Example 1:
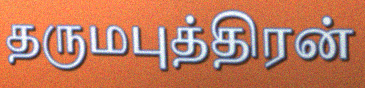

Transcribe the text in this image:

தருமபுத்திரன்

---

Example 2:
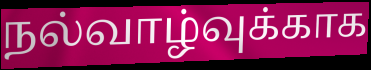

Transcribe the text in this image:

நல்வாழ்வுக்காக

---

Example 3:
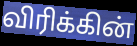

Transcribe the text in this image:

விரிக்கின்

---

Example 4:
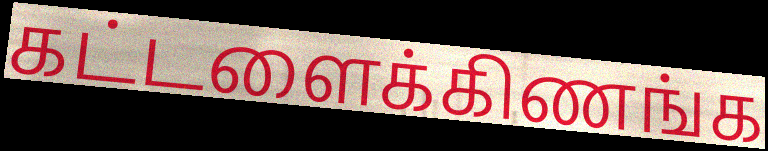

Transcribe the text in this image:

கட்டளைக்கிணங்க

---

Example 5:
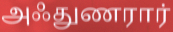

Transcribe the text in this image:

அஃதுணரார்